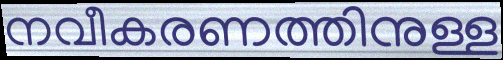
നവീകരണത്തിനുള്ള